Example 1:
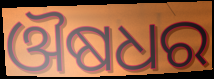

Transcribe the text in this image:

ଔଷଧର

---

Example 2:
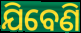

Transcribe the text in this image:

ଯିବେଣି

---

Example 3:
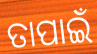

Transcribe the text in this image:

ତାପାଇଁ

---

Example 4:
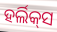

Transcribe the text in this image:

ହର୍ଲିକ୍‌ସ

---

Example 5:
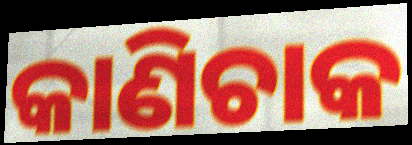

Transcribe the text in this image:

କାଣିଚାକ